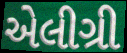
એલીગ્રી